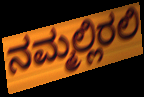
ನಮ್ಮಲ್ಲಿರಲಿ